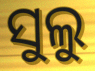
ସୁଲୁ